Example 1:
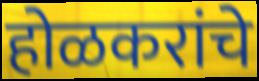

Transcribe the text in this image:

होळकरांचे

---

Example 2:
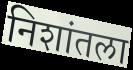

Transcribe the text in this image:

निशांतला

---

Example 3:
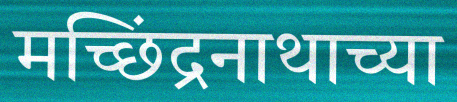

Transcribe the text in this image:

मच्छिंद्रनाथाच्या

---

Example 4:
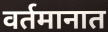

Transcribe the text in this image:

वर्तमानात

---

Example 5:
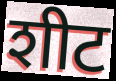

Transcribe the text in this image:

शीट